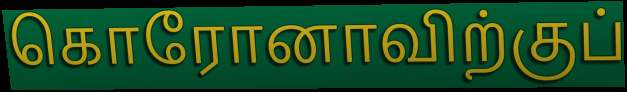
கொரோனாவிற்குப்